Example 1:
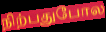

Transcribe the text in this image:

நிற்பதுபோல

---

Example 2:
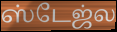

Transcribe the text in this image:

ஸ்டேஜ்ல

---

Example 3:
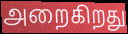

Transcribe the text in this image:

அறைகிறது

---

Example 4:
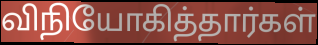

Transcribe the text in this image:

விநியோகித்தார்கள்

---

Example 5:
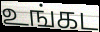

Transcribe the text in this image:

உங்கட